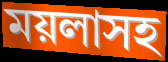
ময়লাসহ